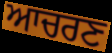
ਆਚਰਣ